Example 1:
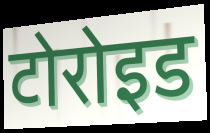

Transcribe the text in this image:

टोरोइड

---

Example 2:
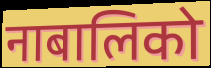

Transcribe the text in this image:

नाबालिको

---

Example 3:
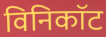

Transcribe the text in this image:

विनिकॉट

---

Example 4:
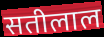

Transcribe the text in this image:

सतीलाल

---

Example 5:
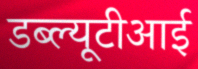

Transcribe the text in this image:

डब्ल्यूटीआई